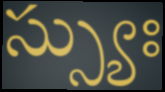
స్స్యుః